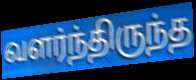
வளர்ந்திருந்த